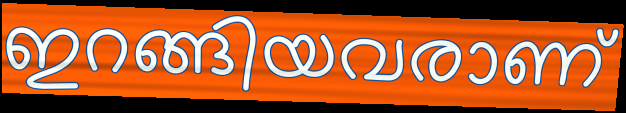
ഇറങ്ങിയവരാണ്